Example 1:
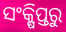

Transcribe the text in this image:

ସଂକ୍ଷିପ୍ତରୁ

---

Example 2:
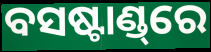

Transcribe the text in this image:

ବସଷ୍ଟାଣ୍ଡ୍‌ରେ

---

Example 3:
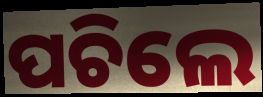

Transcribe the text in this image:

ପଚିଲେ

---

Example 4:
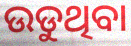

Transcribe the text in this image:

ଉଡୁଥିବା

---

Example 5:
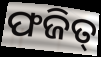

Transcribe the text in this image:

ଫଜିତ୍